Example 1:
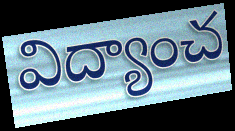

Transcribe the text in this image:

విద్యాంచ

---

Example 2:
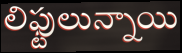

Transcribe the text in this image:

లిఫ్టులున్నాయి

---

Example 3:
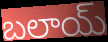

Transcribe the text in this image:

బలాయ్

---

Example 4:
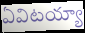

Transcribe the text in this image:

ఏవిటయ్యా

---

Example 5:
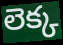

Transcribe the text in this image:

లెక్క